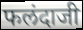
फलंदाजी